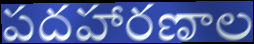
పదహారణాల